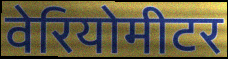
वेरियोमीटर